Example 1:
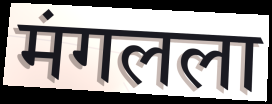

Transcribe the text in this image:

मंगलला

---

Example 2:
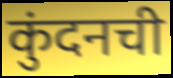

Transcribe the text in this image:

कुंदनची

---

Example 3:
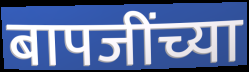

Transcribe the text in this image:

बापजींच्या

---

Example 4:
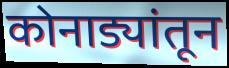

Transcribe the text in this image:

कोनाड्यांतून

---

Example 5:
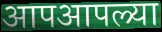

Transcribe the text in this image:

आपआपल्या